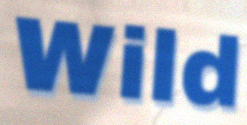
Wild